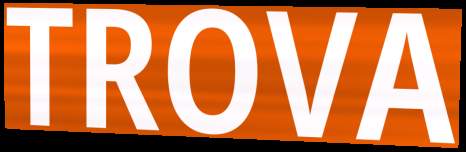
TROVA